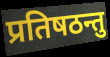
प्रतिषठन्तु